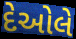
દેઓલે